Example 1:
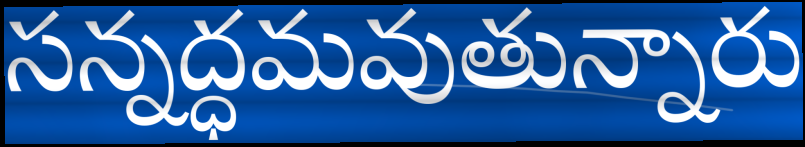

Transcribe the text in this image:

సన్నద్ధమవుతున్నారు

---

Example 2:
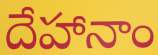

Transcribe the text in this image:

దేహానాం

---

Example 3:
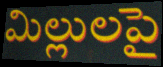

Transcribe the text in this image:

మిల్లులపై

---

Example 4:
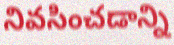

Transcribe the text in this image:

నివసించడాన్ని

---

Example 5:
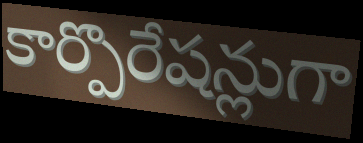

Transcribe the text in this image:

కార్పొరేషన్లుగా